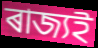
ৰাজ্যই